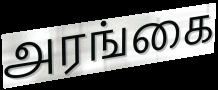
அரங்கை